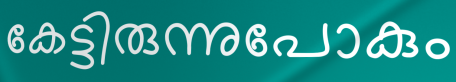
കേട്ടിരുന്നുപോകും